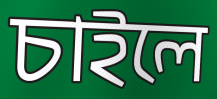
চাইলে